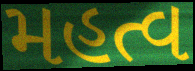
મહત્વ